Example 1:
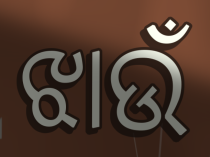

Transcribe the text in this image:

ଝାଉଁ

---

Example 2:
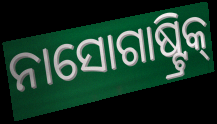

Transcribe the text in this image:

ନାସୋଗାଷ୍ଟ୍ରିକ୍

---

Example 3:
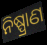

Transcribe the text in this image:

ନିଷ୍ପ୍ରାଣ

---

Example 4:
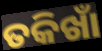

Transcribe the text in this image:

ତକିଖାଁ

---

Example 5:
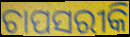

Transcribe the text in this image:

ଚାପସରୀକି